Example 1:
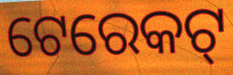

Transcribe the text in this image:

ଟେରେକଟ୍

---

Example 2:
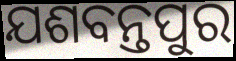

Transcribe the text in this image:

ଯଶବନ୍ତପୁର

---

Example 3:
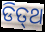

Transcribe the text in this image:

ଡିତ୍‍ଥ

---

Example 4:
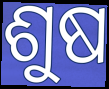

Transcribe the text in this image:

ଶୁଷ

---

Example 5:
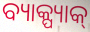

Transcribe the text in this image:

ବ୍ୟାକ୍ପ୍ୟାକ୍